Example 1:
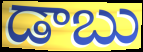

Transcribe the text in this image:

డాబు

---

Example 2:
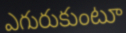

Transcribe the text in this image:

ఎగురుకుంటూ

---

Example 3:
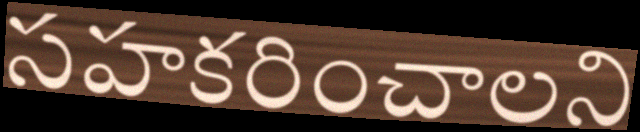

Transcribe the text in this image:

సహకరించాలని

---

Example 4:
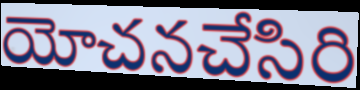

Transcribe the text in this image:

యోచనచేసిరి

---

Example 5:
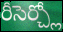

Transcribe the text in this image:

రీసెర్చ్లో